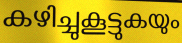
കഴിച്ചുകൂട്ടുകയും